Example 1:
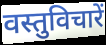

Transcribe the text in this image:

वस्तुविचारें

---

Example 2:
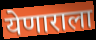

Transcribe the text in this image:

येणाराला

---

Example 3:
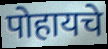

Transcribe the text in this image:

पोहायचे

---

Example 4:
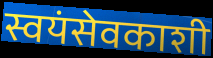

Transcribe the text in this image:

स्वयंसेवकाशी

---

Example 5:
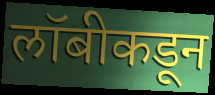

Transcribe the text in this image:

लॉबीकडून